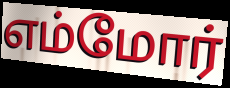
எம்மோர்